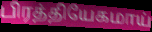
பிரத்தியேகமாய்